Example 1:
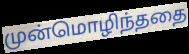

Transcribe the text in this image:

முன்மொழிந்ததை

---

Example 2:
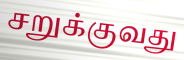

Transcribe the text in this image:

சறுக்குவது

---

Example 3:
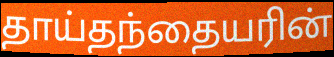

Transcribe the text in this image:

தாய்தந்தையரின்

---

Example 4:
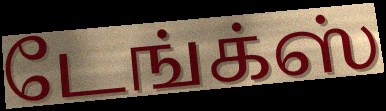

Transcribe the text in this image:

டேங்க்ஸ்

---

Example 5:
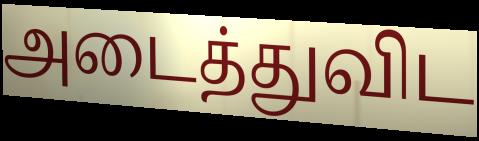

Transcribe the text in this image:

அடைத்துவிட